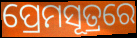
ପ୍ରେମସୂତ୍ରରେ